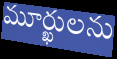
మూర్ఖులను